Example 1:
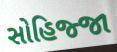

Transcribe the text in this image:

સોહિજ્જા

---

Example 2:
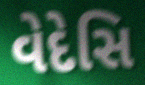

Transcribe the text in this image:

વેદેસિ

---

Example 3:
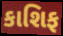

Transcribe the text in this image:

કાશિફ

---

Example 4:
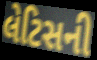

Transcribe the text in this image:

લેટિસની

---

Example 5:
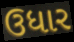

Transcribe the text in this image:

ઉધાર